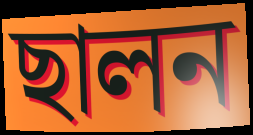
ছালন